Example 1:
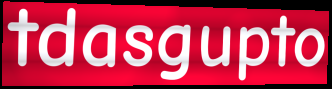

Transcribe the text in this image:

tdasgupto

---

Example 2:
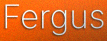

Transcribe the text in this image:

Fergus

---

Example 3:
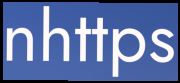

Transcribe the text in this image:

nhttps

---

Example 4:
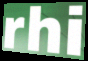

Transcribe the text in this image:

rhi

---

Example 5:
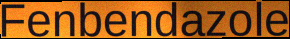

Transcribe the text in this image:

Fenbendazole